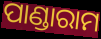
ପାଣ୍ଡାରାମ